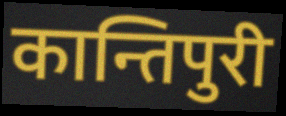
कान्तिपुरी